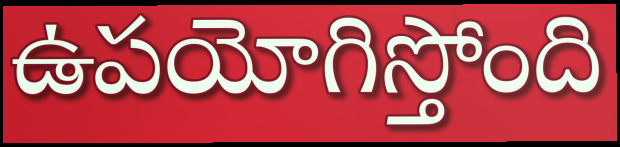
ఉపయోగిస్తోంది